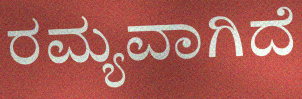
ರಮ್ಯವಾಗಿದೆ